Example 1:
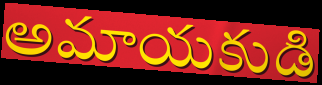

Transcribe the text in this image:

అమాయకుడి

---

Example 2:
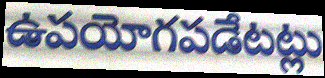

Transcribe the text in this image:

ఉపయోగపడేటట్లు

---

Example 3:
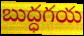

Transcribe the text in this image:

బుద్ధగయ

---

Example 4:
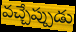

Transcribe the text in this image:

వచ్చేప్పుడు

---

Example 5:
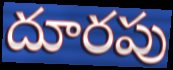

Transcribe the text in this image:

దూరపు